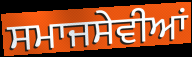
ਸਮਾਜਸੇਵੀਆਂ